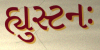
હ્યુસ્ટનઃ